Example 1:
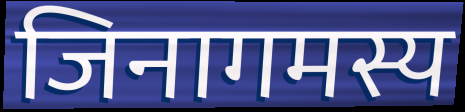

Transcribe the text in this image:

जिनागमस्य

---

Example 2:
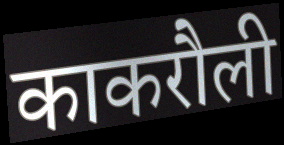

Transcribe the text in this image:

काकरौली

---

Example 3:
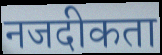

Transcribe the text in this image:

नजदीकता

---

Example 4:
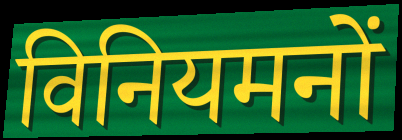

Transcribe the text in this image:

विनियमनों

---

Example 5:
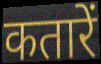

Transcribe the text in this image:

कतारें